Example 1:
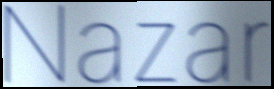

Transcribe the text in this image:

Nazar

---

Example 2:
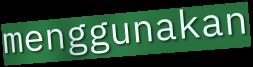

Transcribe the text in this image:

menggunakan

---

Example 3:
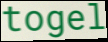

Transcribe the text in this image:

togel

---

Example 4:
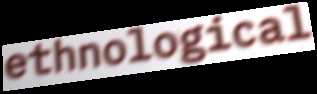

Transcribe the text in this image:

ethnological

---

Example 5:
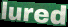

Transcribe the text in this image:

lured